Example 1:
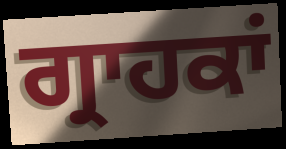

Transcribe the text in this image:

ਗ੍ਰਾਹਕਾਂ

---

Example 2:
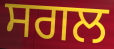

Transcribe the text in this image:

ਸਗਲ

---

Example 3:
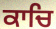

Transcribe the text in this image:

ਕਾਚਿ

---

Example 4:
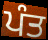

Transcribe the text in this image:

ਪੰਤ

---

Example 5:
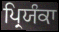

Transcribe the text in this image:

ਪ੍ਰਿਯੰਕਾ